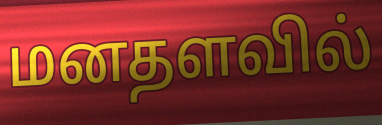
மனதளவில்